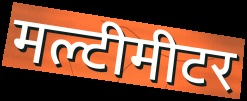
मल्टीमीटर